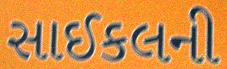
સાઈકલની